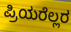
ಪ್ರಿಯರೆಲ್ಲರ